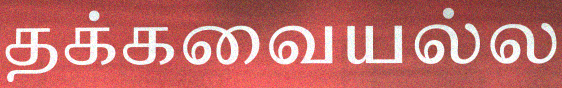
தக்கவையல்ல